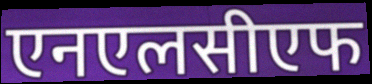
एनएलसीएफ